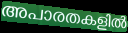
അപാരതകളിൽ